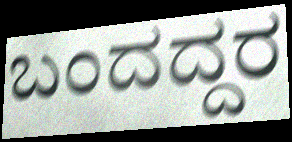
ಬಂದದ್ದರ